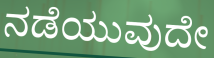
ನಡೆಯುವುದೇ